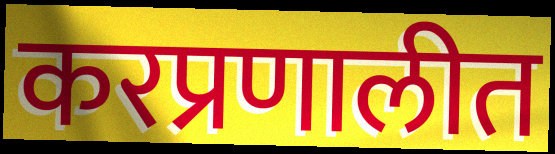
करप्रणालीत